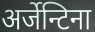
अर्जेन्टिना